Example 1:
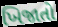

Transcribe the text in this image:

ખિજાતો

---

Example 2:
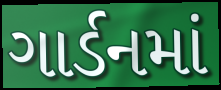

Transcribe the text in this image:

ગાર્ડનમાં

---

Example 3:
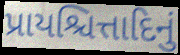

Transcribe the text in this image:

પ્રાયશ્ચિત્તાદિનું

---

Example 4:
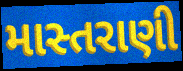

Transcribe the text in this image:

માસ્તરાણી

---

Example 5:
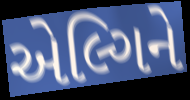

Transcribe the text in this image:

એલ્ગિને